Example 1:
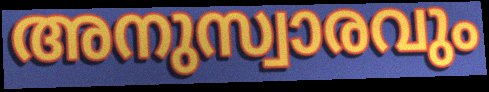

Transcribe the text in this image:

അനുസ്വാരവും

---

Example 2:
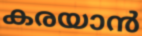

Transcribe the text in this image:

കരയാൻ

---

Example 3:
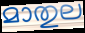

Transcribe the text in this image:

മാതുല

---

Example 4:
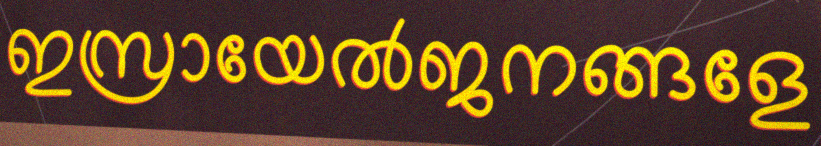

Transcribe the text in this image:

ഇസ്രായേൽജനങ്ങളേ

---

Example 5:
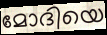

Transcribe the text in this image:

മോദിയെ